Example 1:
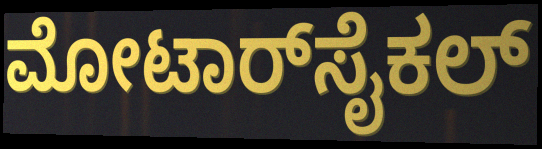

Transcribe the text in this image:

ಮೋಟಾರ್‌ಸೈಕಲ್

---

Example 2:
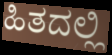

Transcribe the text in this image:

ಹಿತದಲ್ಲಿ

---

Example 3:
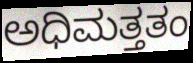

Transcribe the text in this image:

ಅಧಿಮತ್ತತಂ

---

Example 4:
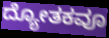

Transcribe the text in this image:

ದ್ಯೋತಕವೂ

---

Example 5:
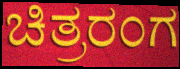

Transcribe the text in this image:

ಚಿತ್ರರಂಗ